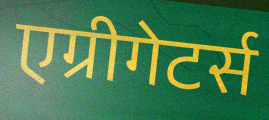
एग्रीगेटर्स